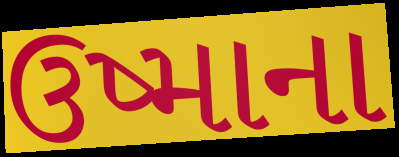
ઉષ્માના